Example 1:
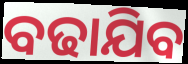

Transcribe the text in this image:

ବଢାଯିବ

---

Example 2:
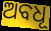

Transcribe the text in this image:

ଅବଧୂ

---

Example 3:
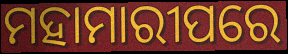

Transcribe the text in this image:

ମହାମାରୀପରେ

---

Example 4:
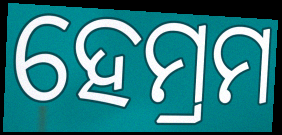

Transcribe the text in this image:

ହେମ୍ରମ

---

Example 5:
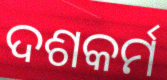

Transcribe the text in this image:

ଦଶକର୍ମ